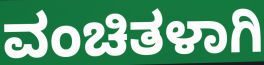
ವಂಚಿತಳಾಗಿ